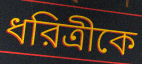
ধরিত্রীকে